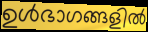
ഉൾഭാഗങ്ങളിൽ